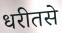
धरीतसे